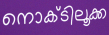
നൊക്ടിലൂക്ക